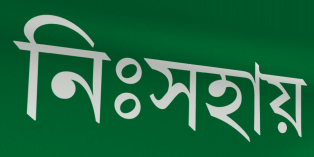
নিঃসহায়